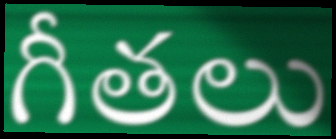
గీతలు